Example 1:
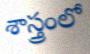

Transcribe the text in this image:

శాస్త్రంలో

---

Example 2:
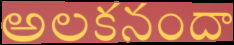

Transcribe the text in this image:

అలకనందా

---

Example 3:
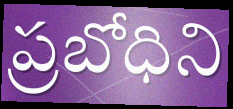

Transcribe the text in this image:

ప్రబోధిని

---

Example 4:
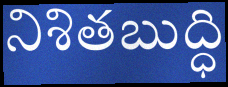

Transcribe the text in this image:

నిశితబుద్ధి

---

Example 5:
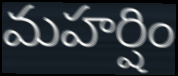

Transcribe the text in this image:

మహర్షిం